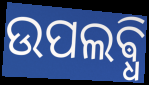
ଉପଲଵ୍ଧି